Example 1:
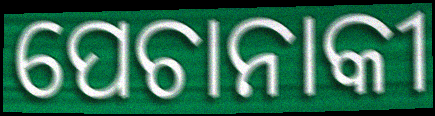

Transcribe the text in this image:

ପେଚାନାକୀ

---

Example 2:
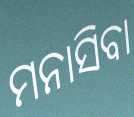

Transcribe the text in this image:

ମନାସିବା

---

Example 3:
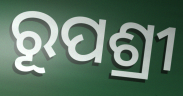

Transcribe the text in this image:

ରୂପଶ୍ରୀ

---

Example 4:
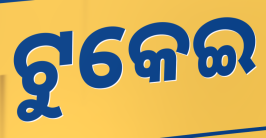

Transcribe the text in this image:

ଟୁକେଇ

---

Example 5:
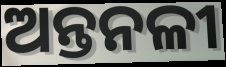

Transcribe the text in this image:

ଅନ୍ତନଳୀ